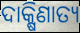
ଦାକ୍ଷିଣାତ୍ୟ